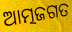
ଆତ୍ମଜଗତ